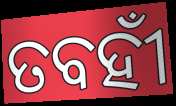
ତବହୀଁ